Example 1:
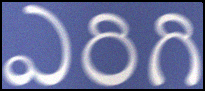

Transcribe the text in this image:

ఎరిగి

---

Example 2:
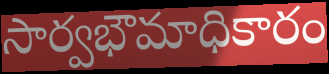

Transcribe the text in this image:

సార్వభౌమాధికారం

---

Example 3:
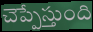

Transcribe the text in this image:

చెప్పేస్తుంది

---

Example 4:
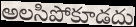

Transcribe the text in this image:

అలసిపోకూడదు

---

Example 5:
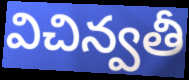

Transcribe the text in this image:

విచిన్వతీ